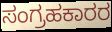
ಸಂಗ್ರಹಕಾರರ